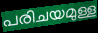
പരിചയമുള്ള